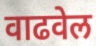
वाढवेल